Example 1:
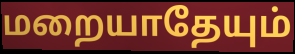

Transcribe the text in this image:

மறையாதேயும்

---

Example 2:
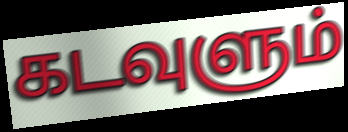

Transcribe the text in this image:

கடவுளும்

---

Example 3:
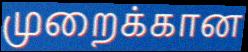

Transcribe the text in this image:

முறைக்கான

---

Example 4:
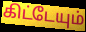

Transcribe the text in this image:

கிட்டேயும்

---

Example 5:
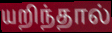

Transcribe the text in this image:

யறிந்தால்